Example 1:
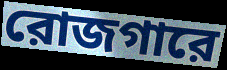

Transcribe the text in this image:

রোজগারে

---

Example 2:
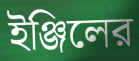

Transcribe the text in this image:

ইঞ্জিলের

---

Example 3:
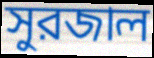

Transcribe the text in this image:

সুরজাল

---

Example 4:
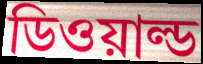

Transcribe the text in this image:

ডিওয়াল্ড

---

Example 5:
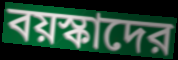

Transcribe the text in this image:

বয়স্কাদের